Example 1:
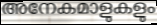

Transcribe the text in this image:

അനേകമാളുകളും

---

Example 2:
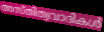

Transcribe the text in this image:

അസ്തിത്വവാദികൾ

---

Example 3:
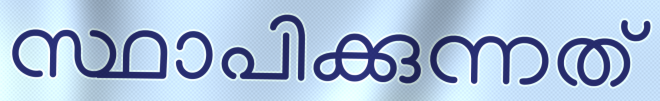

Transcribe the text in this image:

സ്ഥാപിക്കുന്നത്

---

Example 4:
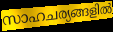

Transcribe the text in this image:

സാഹചര്യങ്ങളിൽ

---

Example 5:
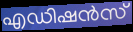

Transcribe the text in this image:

എഡിഷൻസ്